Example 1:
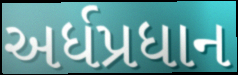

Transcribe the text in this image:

અર્ધપ્રધાન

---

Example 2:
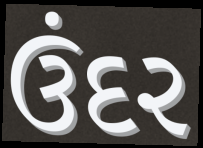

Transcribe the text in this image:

ઉંદર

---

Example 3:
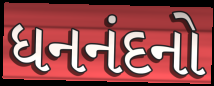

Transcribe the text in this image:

ધનનંદનો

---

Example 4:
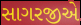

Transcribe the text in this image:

સાગરજીએ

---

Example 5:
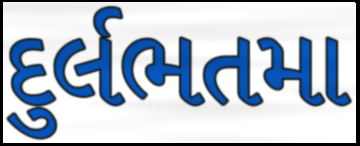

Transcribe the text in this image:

દુર્લભતમા